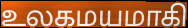
உலகமயமாகி